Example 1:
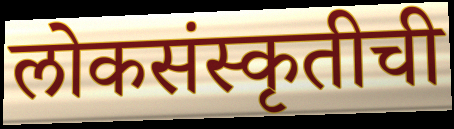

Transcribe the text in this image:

लोकसंस्कृतीची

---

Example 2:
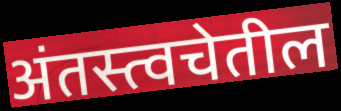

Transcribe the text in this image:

अंतस्त्वचेतील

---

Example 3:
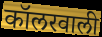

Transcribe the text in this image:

कॉलरवाली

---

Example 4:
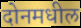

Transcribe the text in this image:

दोनमधील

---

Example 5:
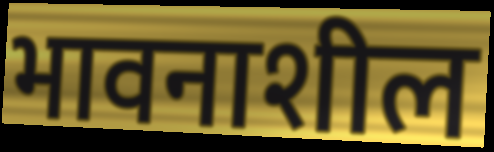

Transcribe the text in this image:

भावनाशील